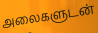
அலைகளுடன்